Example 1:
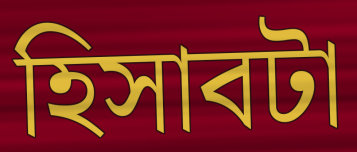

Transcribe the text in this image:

হিসাবটা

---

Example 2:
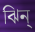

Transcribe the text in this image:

ঝিন্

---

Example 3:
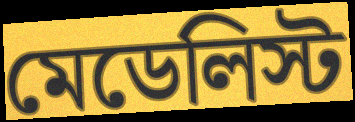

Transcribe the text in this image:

মেডেলিস্ট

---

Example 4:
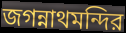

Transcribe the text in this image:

জগন্নাথমন্দির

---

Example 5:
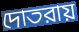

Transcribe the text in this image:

দোতরায়